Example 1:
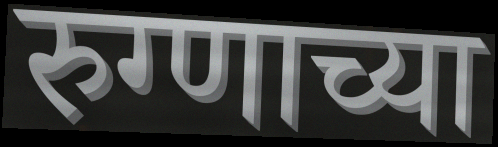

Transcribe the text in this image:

रुग्णाच्या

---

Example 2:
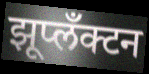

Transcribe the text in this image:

झूप्लँक्टन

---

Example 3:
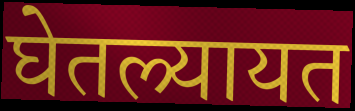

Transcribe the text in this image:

घेतल्यायत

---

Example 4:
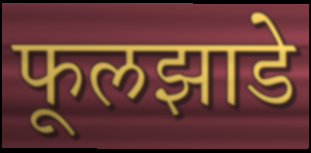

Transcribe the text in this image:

फूलझाडे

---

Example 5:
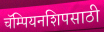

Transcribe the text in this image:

चॅम्पियनशिपसाठी